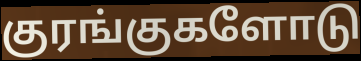
குரங்குகளோடு